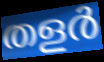
തളർ